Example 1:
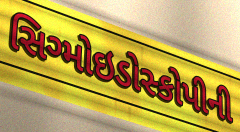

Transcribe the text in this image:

સિગ્મોઇડોસ્કોપીની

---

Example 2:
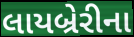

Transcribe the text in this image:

લાયબ્રેરીના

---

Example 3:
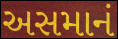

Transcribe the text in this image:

અસમાનં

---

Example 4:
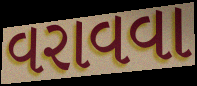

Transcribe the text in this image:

વરાવવા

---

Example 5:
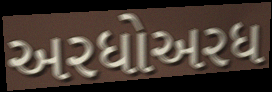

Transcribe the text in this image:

અરધોઅરધ